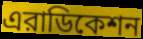
এরাডিকেশন